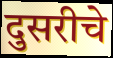
दुसरीचे